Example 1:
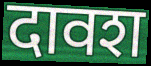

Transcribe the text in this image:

दावश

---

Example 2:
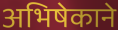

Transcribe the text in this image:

अभिषेकाने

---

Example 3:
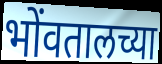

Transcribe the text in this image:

भोंवतालच्या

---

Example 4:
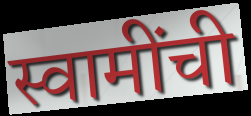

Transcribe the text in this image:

स्वामींची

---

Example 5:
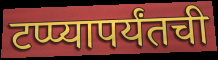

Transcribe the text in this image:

टप्प्यापर्यंतची